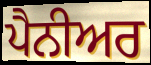
ਪੈਨੀਅਰ